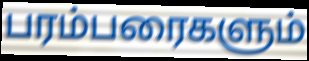
பரம்பரைகளும்